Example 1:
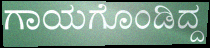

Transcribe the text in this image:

ಗಾಯಗೊಂಡಿದ್ದ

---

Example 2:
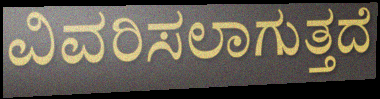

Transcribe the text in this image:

ವಿವರಿಸಲಾಗುತ್ತದೆ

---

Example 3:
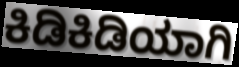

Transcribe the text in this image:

ಕಿಡಿಕಿಡಿಯಾಗಿ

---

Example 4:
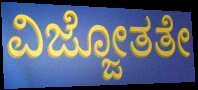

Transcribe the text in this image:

ವಿಜ್ಜೋತತೇ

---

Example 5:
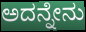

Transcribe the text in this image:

ಅದನ್ನೇನು